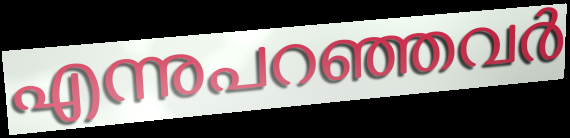
എന്നുപറഞ്ഞവർ